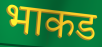
भाकड